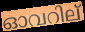
ഓവറില്